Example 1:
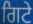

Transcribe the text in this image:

ਗਿਟੇ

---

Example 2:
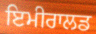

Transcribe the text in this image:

ਇਮੀਰਾਲਡ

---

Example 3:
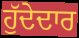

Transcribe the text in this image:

ਹੁੱਦੇਦਾਰ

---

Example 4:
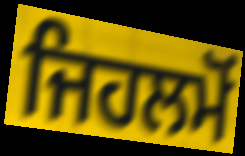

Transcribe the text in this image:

ਜਿਹਲਮੋਂ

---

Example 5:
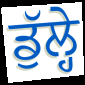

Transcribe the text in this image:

ਡੁੱਲ੍ਹੇ